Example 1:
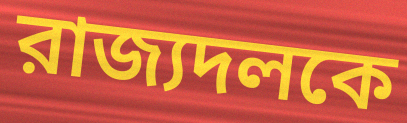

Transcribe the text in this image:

রাজ্যদলকে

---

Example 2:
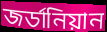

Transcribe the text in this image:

জর্ডানিয়ান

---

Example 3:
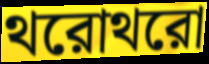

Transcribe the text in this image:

থরোথরো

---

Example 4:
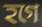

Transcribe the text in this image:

হগে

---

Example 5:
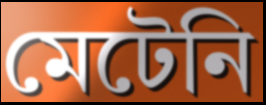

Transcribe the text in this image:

মেটেনি